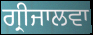
ਗ੍ਰੀਜਾਲਵਾ